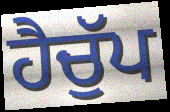
ਹੈਚੁੱਪ